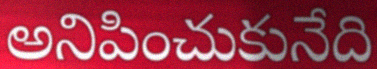
అనిపించుకునేది